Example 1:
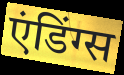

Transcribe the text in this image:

एंडिंग्स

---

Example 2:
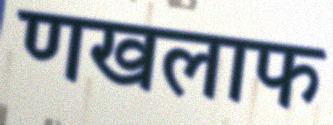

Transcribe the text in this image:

णखलाफ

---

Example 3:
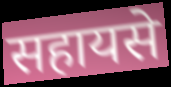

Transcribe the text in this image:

सहायसे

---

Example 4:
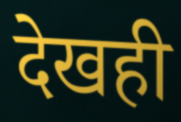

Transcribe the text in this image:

देखही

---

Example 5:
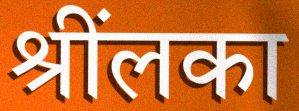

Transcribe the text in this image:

श्रींलका